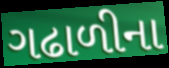
ગઢાળીના